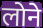
लोने